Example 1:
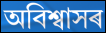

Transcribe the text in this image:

অবিশ্বাসৰ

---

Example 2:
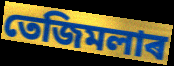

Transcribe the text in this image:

তেজিমলাৰ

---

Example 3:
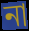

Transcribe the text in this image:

না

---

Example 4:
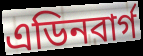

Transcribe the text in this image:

এডিনবাৰ্গ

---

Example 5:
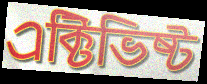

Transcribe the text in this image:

এক্টিভিষ্ট